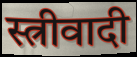
स्त्रीवादी